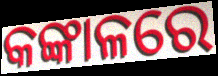
କଙ୍କାଳରେ